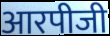
आरपीजी